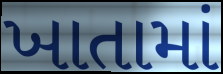
ખાતામાં